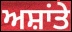
ਅਸ਼ਾਂਤੇ